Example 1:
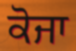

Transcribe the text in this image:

ਕੋਜਾ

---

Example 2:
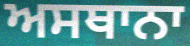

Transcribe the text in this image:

ਅਸਥਾਨਾ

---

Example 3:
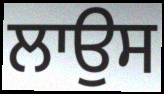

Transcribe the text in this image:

ਲਾਉਸ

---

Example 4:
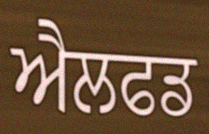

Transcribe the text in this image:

ਐਲਫਡ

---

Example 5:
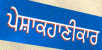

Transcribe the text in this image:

ਪੇਸ਼ਾਕਹਾਣੀਕਾਰ